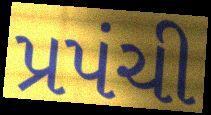
પ્રપંચી